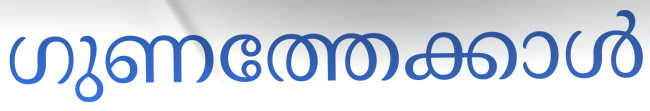
ഗുണത്തേക്കാൾ